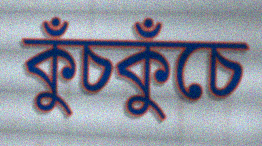
কুঁচকুঁচে